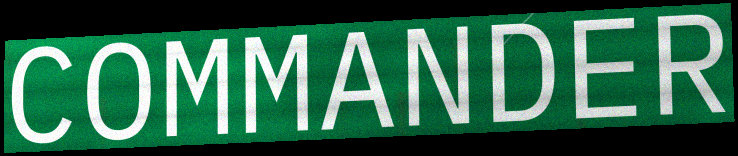
COMMANDER